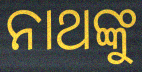
ନାଥଙ୍କୁ